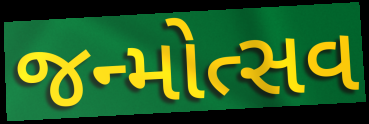
જન્મોત્સવ